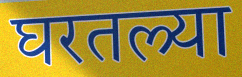
घरतल्या